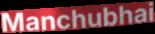
Manchubhai